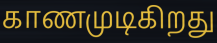
காணமுடிகிறது